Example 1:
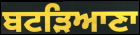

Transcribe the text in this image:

ਬਟੜਿਆਣਾ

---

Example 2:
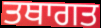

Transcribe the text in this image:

ਤਥਾਗਤ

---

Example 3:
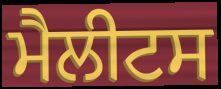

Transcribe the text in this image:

ਮੈਲੀਟਸ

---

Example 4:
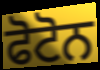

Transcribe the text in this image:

ਫੋਟੋਨ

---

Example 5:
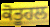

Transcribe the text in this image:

ਕੋਤੂਹਲ